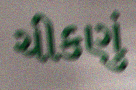
ચીકણું